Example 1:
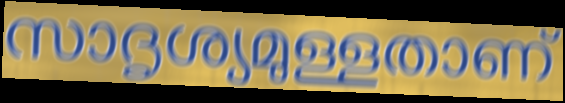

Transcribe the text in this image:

സാദൃശ്യമുള്ളതാണ്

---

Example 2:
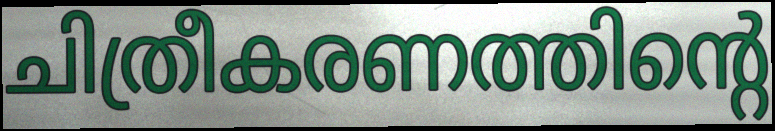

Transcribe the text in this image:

ചിത്രീകരണത്തിന്റെ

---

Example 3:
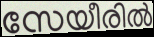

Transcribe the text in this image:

സേയീരിൽ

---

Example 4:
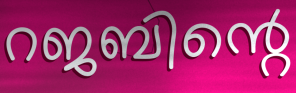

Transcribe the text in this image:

റജബിന്റെ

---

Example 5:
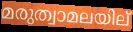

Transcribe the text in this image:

മരുത്വാമലയില്